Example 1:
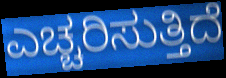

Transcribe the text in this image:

ಎಚ್ಚರಿಸುತ್ತಿದೆ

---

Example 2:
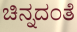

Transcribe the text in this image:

ಚಿನ್ನದಂತೆ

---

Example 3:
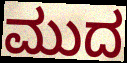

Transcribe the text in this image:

ಮುದ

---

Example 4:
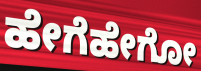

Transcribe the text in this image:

ಹೇಗೆಹೇಗೋ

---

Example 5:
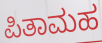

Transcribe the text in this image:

ಪಿತಾಮಹ